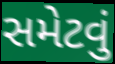
સમેટવું